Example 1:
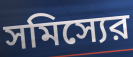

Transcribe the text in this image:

সমিস্যের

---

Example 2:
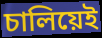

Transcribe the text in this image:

চালিয়েই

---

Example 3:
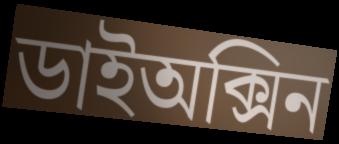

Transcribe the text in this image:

ডাইঅক্সিন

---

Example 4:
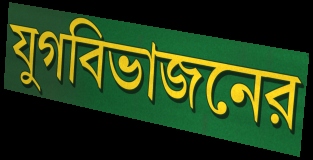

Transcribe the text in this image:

যুগবিভাজনের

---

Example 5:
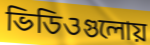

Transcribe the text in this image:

ভিডিওগুলোয়